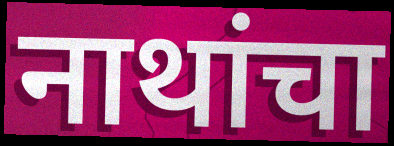
नाथांचा